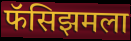
फॅसिझमला